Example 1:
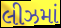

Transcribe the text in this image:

લીઝમાં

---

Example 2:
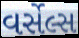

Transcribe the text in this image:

વર્સેલ્સ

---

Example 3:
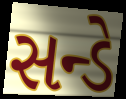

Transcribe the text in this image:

સન્ડે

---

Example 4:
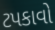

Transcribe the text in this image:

ટપકાવો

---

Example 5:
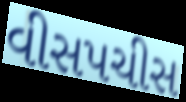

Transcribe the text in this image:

વીસપચીસ